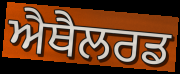
ਐਥੈਲਰਡ